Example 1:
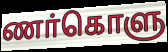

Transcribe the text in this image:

ணர்கொளு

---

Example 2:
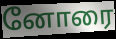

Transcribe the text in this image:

னோரை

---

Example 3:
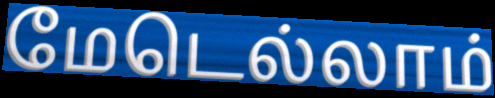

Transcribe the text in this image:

மேடெல்லாம்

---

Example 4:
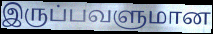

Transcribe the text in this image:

இருப்பவளுமான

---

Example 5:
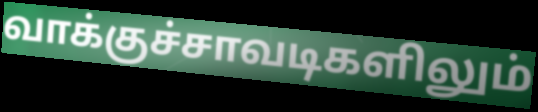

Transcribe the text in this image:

வாக்குச்சாவடிகளிலும்